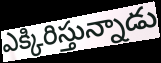
ఎక్కిరిస్తున్నాడు